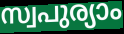
സ്വപുര്യാം